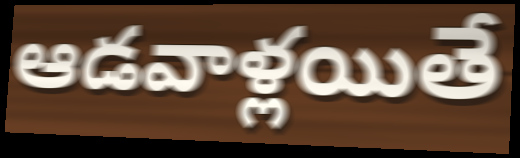
ఆడవాళ్లయితే